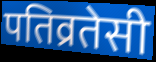
पतिव्रतेसी